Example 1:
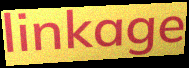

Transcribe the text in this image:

linkage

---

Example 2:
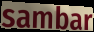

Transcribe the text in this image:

sambar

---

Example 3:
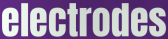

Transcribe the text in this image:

electrodes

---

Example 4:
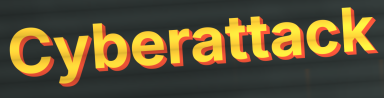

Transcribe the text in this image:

Cyberattack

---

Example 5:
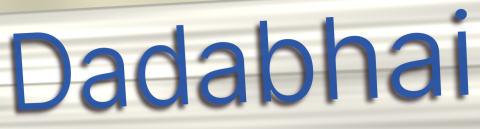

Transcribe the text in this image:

Dadabhai